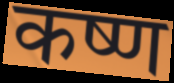
कष्ण